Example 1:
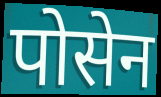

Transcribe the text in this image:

पोसेन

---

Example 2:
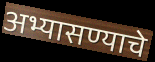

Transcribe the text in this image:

अभ्यासण्याचे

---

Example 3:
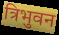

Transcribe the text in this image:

त्रिभुवन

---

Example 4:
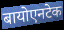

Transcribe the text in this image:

बायोएनटेक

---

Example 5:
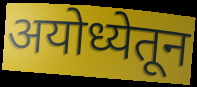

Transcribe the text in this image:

अयोध्येतून